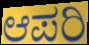
ಆಪರಿ